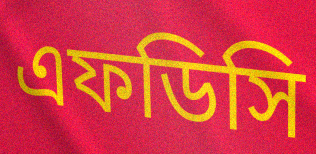
এফডিসি